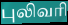
புலிவரி